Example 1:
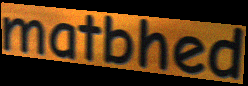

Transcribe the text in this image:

matbhed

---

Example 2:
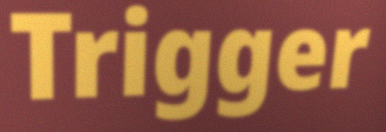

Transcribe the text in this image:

Trigger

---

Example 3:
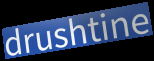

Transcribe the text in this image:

drushtine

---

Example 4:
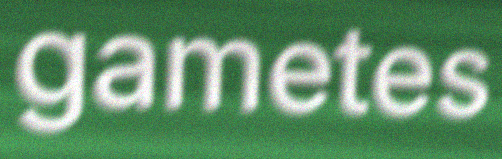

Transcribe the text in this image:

gametes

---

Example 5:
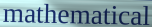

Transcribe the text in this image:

mathematical